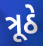
ત્રૂઠે